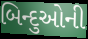
બિન્દુઓની